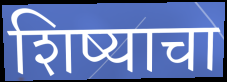
शिष्याचा